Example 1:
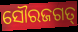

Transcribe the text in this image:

ସୌରଜଗତ୍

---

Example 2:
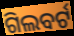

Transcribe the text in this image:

ଗିଲବର୍ଟ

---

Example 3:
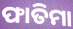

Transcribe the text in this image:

ଫାତିମା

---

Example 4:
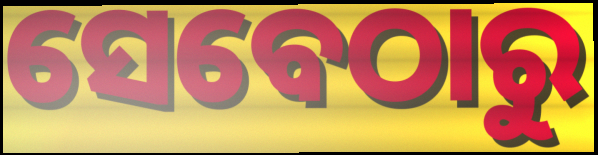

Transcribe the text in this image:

ସେବେଠାରୁ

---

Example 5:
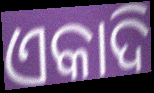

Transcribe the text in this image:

ଏକାଦି